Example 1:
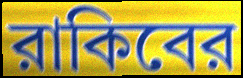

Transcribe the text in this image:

রাকিবের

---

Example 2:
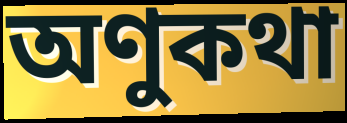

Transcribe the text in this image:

অণুকথা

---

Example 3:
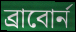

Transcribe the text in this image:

ব্রাবোর্ন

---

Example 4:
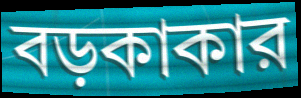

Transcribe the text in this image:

বড়কাকার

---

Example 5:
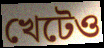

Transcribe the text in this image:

খেটেও